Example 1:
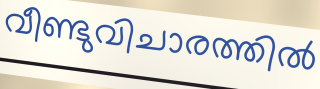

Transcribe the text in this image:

വീണ്ടുവിചാരത്തിൽ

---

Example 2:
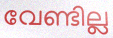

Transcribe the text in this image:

വേണ്ടില്ല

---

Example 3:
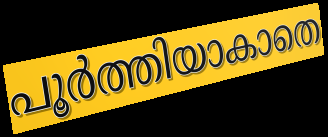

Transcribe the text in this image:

പൂർത്തിയാകാതെ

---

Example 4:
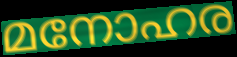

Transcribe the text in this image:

മനോഹര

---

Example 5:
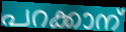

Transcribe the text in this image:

പറക്കാന്